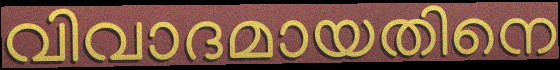
വിവാദമായതിനെ